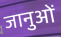
जानुओं